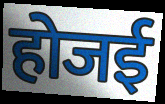
होजई